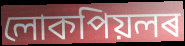
লোকপিয়লৰ